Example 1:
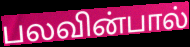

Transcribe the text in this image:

பலவின்பால்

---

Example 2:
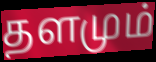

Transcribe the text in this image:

தளமும்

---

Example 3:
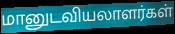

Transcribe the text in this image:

மானுடவியலாளர்கள்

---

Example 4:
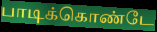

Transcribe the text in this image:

பாடிக்கொண்டே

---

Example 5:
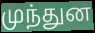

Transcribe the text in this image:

முந்துன